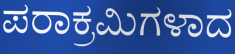
ಪರಾಕ್ರಮಿಗಳಾದ